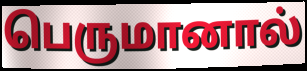
பெருமானால்